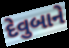
દેવુબાને